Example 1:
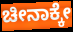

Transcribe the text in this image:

ಚೀನಾಕ್ಕೇ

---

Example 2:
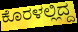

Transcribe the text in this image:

ಕೊರಳಲ್ಲಿದ್ದ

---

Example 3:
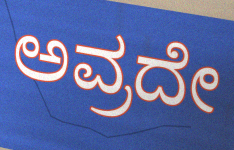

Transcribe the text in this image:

ಅವ್ರದೇ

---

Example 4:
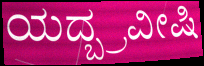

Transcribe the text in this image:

ಯದ್ಬ್ರವೀಷಿ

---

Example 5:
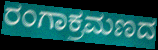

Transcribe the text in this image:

ರಂಗಾಕ್ರಮಣದ